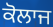
ਕੋਲਾਜ